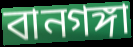
বানগঙ্গা